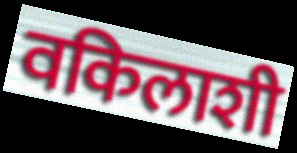
वकिलाशी